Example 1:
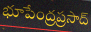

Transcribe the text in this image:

భూపేంద్రప్రసాద్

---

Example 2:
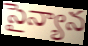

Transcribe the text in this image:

సైన్యాన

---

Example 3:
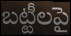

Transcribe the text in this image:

బట్టీలపై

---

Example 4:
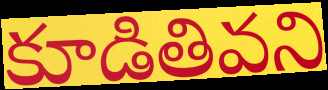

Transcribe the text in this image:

కూడితివని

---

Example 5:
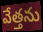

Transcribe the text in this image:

వేత్తను